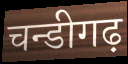
चन्डीगढ़